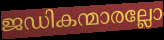
ജഡികന്മാരല്ലോ